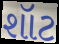
શૉટ